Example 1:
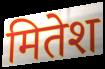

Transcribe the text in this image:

मितेश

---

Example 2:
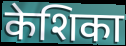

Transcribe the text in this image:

केशिका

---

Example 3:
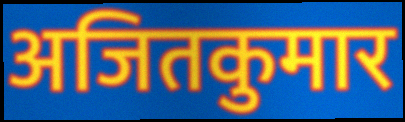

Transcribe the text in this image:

अजितकुमार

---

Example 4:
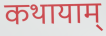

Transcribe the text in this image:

कथायाम्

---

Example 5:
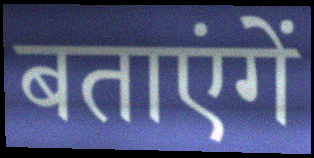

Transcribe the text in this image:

बताएंगें